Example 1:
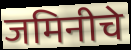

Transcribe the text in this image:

जमिनीचे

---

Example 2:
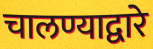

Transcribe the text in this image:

चालण्याद्वारे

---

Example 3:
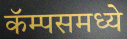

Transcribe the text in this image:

कॅम्पसमध्ये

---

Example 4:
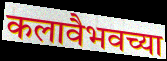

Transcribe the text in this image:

कलावैभवच्या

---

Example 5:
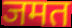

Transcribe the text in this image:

जमत